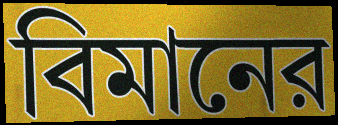
বিমানের